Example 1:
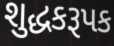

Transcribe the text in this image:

શુદ્ધકરૂપક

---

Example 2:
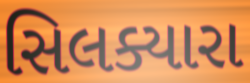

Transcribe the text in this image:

સિલક્યારા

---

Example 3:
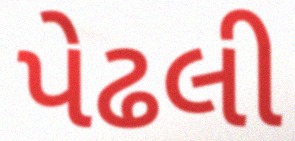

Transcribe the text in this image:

પેઢલી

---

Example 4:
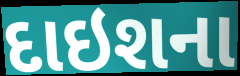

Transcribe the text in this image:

દાઇશના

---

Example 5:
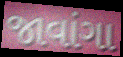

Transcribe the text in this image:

જાવાંગા